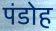
पंडोह